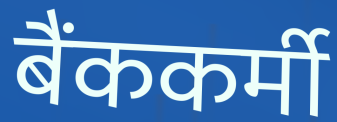
बैंककर्मी